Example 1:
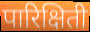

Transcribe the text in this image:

पारिक्षिती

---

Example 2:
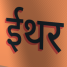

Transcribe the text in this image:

ईथर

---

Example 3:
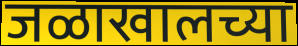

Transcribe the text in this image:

जळाखालच्या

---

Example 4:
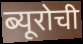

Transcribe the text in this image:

ब्यूरोची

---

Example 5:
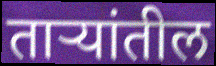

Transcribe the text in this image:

ताऱ्यांतील